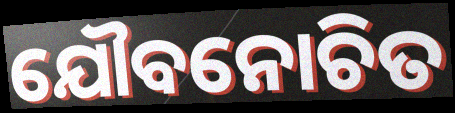
ଯୌବନୋଚିତ